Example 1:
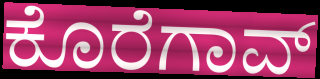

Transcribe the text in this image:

ಕೊರೆಗಾವ್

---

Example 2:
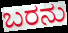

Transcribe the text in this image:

ಬರನು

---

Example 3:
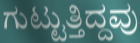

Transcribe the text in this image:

ಗುಟ್ಟುತ್ತಿದ್ದವು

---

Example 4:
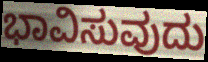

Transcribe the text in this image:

ಭಾವಿಸುವುದು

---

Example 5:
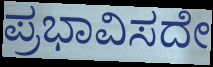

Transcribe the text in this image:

ಪ್ರಭಾವಿಸದೇ